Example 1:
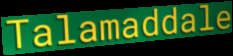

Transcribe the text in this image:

Talamaddale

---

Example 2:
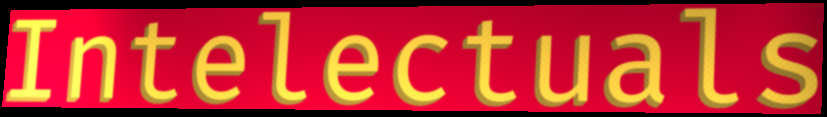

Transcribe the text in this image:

Intelectuals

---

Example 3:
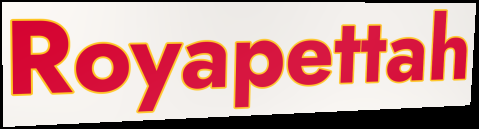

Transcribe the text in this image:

Royapettah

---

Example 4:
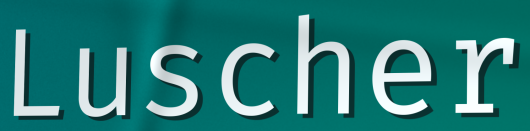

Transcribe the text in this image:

Luscher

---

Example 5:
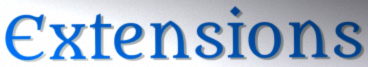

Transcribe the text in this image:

Extensions